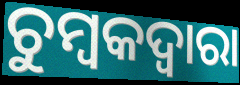
ଚୁମ୍ବକଦ୍ବାରା